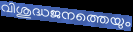
വിശുദ്ധജനത്തെയും